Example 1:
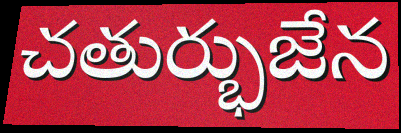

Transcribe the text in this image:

చతుర్భుజేన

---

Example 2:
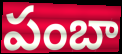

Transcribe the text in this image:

పంబా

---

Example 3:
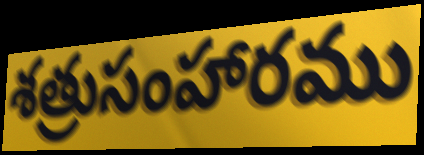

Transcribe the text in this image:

శత్రుసంహారము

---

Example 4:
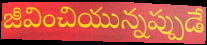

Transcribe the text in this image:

జీవించియున్నప్పుడే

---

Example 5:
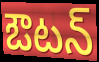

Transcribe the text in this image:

ఔటన్